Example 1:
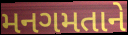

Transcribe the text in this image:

મનગમતાને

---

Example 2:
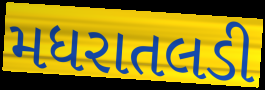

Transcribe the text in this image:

મધરાતલડી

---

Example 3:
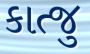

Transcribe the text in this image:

કાત્જુ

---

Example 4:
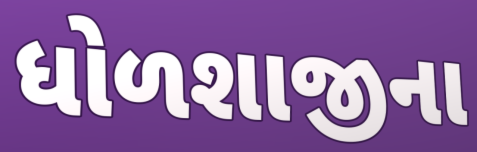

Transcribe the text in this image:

ધોળશાજીના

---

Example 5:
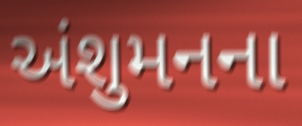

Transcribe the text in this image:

અંશુમનના